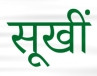
सूखीं